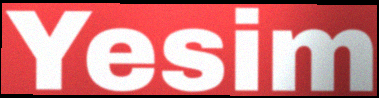
Yesim